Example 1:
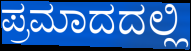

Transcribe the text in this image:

ಪ್ರಮಾದದಲ್ಲಿ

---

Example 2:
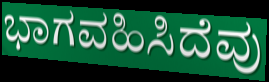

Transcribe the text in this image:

ಭಾಗವಹಿಸಿದೆವು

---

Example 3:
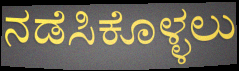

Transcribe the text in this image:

ನಡೆಸಿಕೊಳ್ಳಲು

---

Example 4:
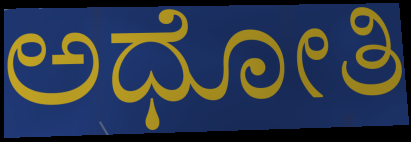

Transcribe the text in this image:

ಅಧೋತಿ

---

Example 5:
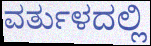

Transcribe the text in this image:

ವರ್ತುಳದಲ್ಲಿ